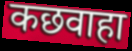
कछवाहा